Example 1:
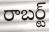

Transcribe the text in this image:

రాబర్ట్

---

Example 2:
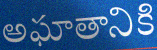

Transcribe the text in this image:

అఘాతానికి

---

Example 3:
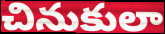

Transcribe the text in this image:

చినుకులా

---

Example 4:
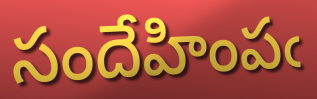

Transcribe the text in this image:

సందేహింపఁ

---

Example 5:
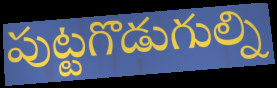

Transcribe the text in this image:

పుట్టగొడుగుల్ని